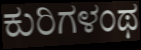
ಕುರಿಗಳಂಥ